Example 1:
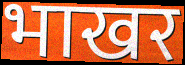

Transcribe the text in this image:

भाखर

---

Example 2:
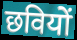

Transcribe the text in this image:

छवियों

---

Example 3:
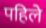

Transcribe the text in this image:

पहिले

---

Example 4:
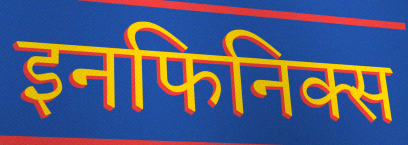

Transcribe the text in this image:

इनफिनिक्स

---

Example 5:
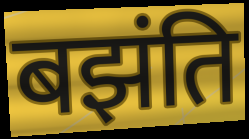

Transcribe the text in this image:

बझंति